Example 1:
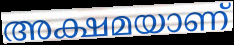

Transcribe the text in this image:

അക്ഷമയാണ്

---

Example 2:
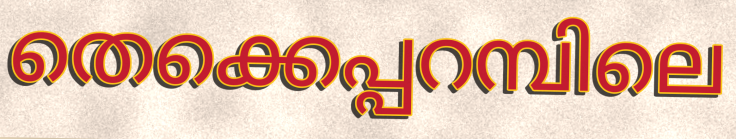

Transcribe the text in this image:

തെക്കെപ്പറമ്പിലെ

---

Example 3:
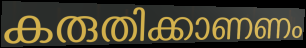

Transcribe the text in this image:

കരുതിക്കാണണം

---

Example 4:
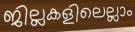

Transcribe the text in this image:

ജില്ലകളിലെല്ലാം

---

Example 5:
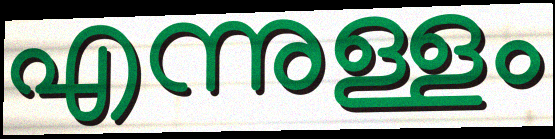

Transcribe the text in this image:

എന്നുള്ളം